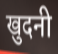
खुदनी